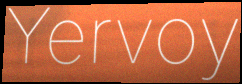
Yervoy